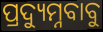
ପ୍ରଦ୍ୟୁମ୍ନବାବୁ